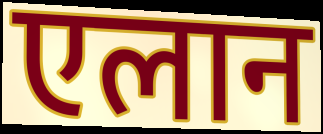
एलान